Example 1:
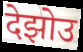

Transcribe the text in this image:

देझोउ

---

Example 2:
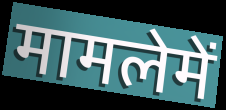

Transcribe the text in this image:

मामलेमें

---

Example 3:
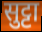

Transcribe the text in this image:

सुट्टा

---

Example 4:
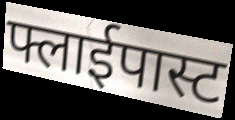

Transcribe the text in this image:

फ्लाईपास्ट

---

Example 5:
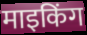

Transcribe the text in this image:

माइकिंग